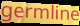
germline